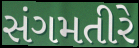
સંગમતીરે